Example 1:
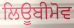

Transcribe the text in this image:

ਲਿਊਬੀਮੋਵ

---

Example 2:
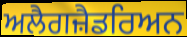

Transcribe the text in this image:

ਅਲੈਗਜ਼ੈਡਰਿਅਨ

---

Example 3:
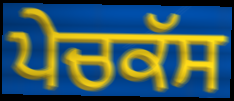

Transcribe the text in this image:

ਪੇਚਕੱਸ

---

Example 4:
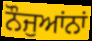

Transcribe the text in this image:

ਨੌਜੁਆਂਨਾਂ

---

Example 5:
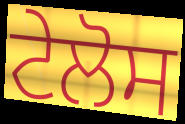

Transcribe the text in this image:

ਟੇਲੋਸ